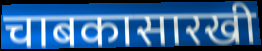
चाबकासारखी